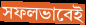
সফলভাবেই